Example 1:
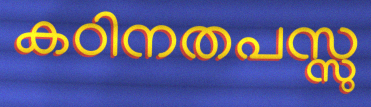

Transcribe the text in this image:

കഠിനതപസ്സു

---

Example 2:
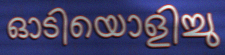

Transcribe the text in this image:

ഓടിയൊളിച്ചു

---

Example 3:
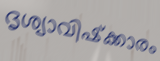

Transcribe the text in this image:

ദൃശ്യാവിഷ്‌ക്കാരം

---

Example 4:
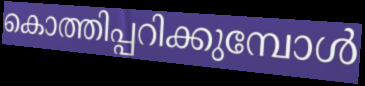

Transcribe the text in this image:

കൊത്തിപ്പറിക്കുമ്പോൾ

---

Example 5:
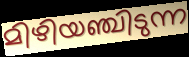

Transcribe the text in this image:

മിഴിയഞ്ചിടുന്ന